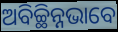
ଅବିଚ୍ଛିନ୍ନଭାବେ